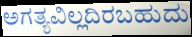
ಅಗತ್ಯವಿಲ್ಲದಿರಬಹುದು